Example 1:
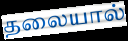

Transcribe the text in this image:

தலையால்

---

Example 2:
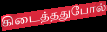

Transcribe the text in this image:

கிடைத்ததுபோல்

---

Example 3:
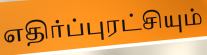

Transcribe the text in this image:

எதிர்ப்புரட்சியும்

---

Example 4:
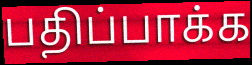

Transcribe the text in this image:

பதிப்பாக்க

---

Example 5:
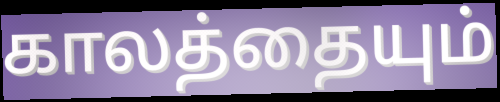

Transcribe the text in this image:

காலத்தையும்